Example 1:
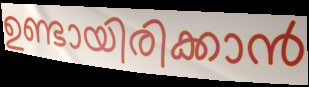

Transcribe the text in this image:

ഉണ്ടായിരിക്കാൻ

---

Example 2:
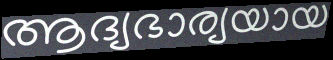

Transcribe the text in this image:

ആദ്യഭാര്യയായ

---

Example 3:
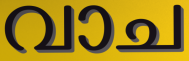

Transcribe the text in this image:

വാച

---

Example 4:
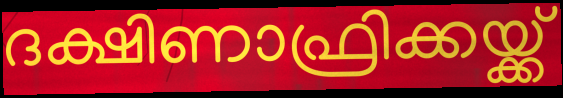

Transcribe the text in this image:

ദക്ഷിണാഫ്രിക്കയ്ക്ക്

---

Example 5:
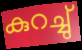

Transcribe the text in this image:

കുറച്ചു്